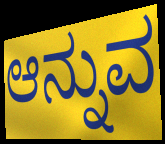
ಆನ್ನುವ